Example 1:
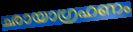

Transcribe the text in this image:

ഛായാഗ്രഹണം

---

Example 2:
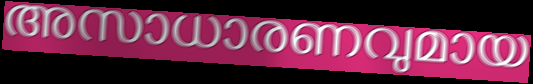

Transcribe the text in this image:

അസാധാരണവുമായ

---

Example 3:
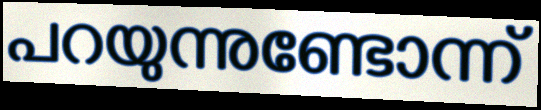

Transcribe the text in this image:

പറയുന്നുണ്ടോന്ന്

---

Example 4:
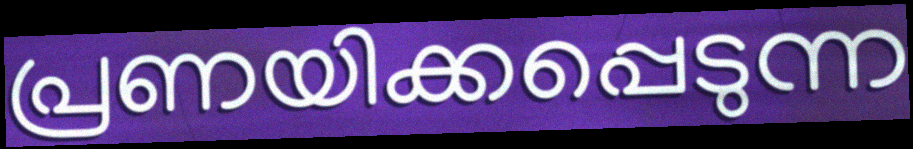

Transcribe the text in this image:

പ്രണയിക്കപ്പെടുന്ന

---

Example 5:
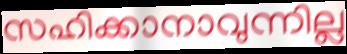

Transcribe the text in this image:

സഹിക്കാനാവുന്നില്ല